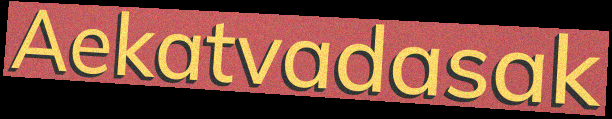
Aekatvadasak